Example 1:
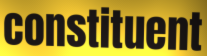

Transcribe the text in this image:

constituent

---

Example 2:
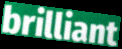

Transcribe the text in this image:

brilliant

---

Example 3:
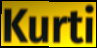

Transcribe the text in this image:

Kurti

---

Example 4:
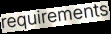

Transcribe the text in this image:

requirements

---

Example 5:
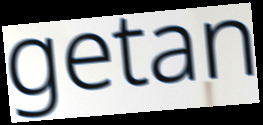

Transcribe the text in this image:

getan